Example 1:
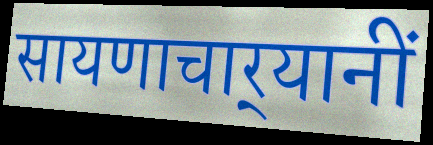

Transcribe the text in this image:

सायणाचार्यानीं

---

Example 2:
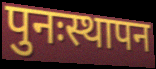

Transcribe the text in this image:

पुनःस्थापन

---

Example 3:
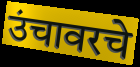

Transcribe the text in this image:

उंचावरचे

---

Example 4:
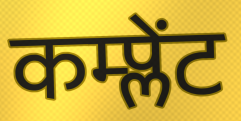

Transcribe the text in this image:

कम्प्लेंट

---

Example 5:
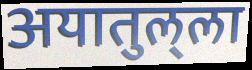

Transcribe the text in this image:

अयातुल्ला